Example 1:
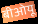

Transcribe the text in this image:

बीओयू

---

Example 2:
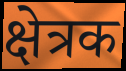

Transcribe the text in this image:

क्षेत्रक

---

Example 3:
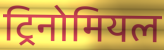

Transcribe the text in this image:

ट्रिनोमियल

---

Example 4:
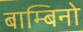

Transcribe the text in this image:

बाम्बिनो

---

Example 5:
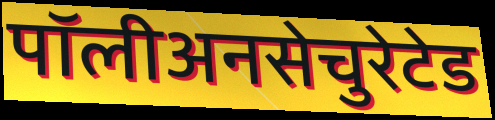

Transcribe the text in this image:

पॉलीअनसेचुरेटेड